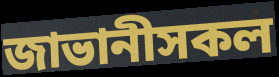
জাভানীসকল